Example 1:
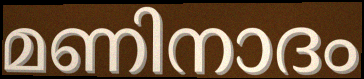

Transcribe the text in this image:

മണിനാദം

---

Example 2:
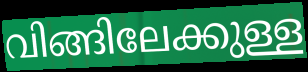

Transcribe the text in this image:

വിങ്ങിലേക്കുള്ള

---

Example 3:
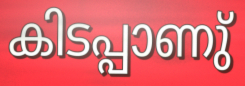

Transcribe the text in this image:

കിടപ്പാണു്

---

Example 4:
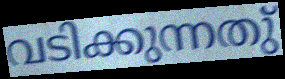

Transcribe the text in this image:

വടിക്കുന്നതു്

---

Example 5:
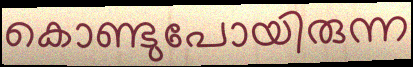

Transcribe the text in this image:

കൊണ്ടുപോയിരുന്ന